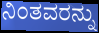
ನಿಂತವರನ್ನು